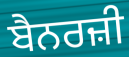
ਬੈਨਰਜ਼ੀ